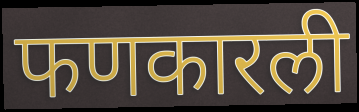
फणकारली